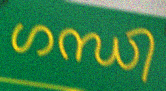
ഗന്ധി